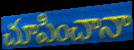
చూపించానా